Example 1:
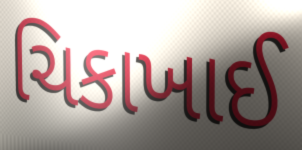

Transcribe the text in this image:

ચિકાખાઈ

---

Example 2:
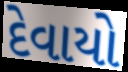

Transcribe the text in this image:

દેવાયો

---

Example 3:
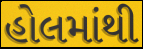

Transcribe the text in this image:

હોલમાંથી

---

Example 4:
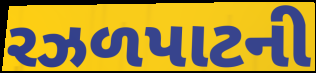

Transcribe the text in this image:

રઝળપાટની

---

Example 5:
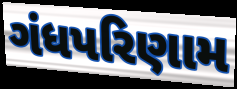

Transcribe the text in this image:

ગંધપરિણામ